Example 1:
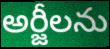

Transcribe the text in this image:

అర్జీలను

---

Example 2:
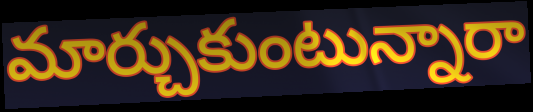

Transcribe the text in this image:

మార్చుకుంటున్నారా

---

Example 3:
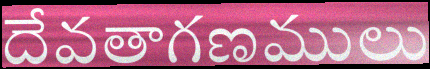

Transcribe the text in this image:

దేవతాగణములు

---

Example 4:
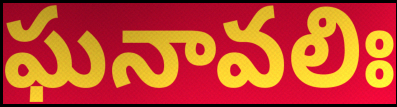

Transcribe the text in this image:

ఘనావలిః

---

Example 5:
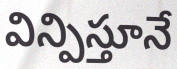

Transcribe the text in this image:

విన్పిస్తూనే